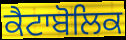
ਕੈਟਾਬੋਲਿਕ